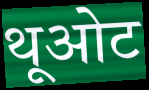
थूओट